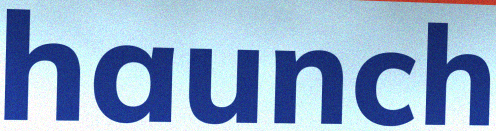
haunch